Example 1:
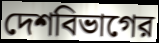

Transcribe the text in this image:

দেশবিভাগের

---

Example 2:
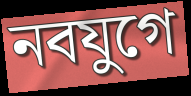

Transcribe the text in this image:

নবযুগে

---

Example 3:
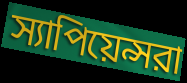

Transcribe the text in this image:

স্যাপিয়েন্সরা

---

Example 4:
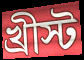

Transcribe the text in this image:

খ্রীস্ট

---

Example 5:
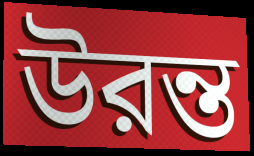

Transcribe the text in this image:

উরন্ত